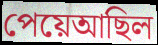
পেয়েআছিল